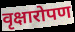
वृक्षारोपण